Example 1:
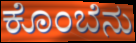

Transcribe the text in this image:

ಕೊಂಬೆನು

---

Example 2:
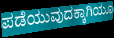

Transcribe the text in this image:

ಪಡೆಯುವುದಕ್ಕಾಗಿಯೂ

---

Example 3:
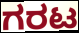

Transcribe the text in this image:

ಗರಟ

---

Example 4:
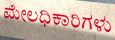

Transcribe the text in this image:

ಮೇಲಧಿಕಾರಿಗಳು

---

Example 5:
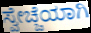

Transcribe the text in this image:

ಸ್ವೇಚ್ಚೆಯಾಗಿ